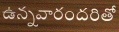
ఉన్నవారందరితో